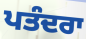
ਪਤੰਦਰਾ